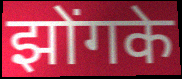
झोंगके